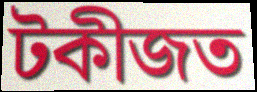
টকীজত